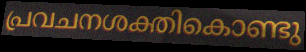
പ്രവചനശക്തികൊണ്ടു